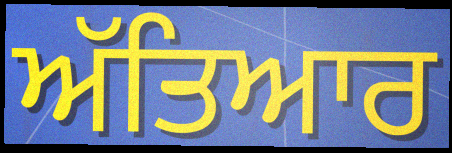
ਅੱਤਿਆਰ